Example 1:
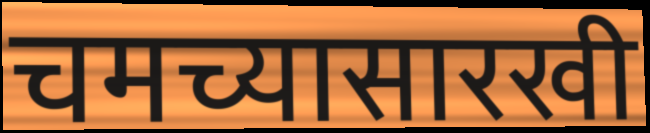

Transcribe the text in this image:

चमच्यासारखी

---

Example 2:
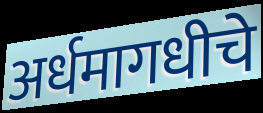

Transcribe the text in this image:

अर्धमागधीचे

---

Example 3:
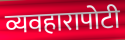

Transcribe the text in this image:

व्यवहारापोटी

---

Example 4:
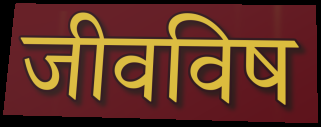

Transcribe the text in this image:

जीवविष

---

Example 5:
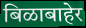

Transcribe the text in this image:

बिळाबाहेर